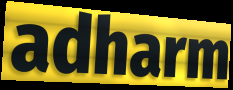
adharm